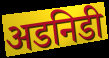
अडनिडी